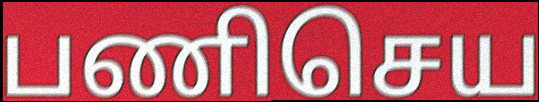
பணிசெய